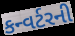
કન્વર્ટરની